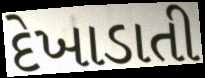
દેખાડાતી